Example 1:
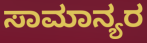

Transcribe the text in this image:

ಸಾಮಾನ್ಯರ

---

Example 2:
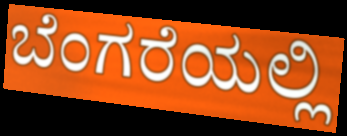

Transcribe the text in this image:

ಬೆಂಗರೆಯಲ್ಲಿ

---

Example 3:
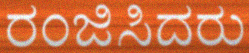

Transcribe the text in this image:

ರಂಜಿಸಿದರು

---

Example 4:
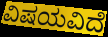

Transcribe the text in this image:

ವಿಷಯವಿದೆ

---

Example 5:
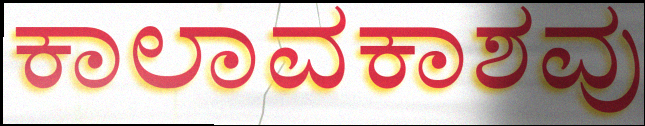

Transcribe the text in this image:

ಕಾಲಾವಕಾಶವು